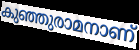
കുഞ്ഞുരാമനാണ്